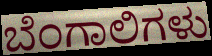
ಬೆಂಗಾಲಿಗಳು